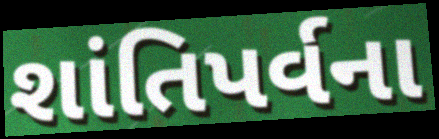
શાંતિપર્વના